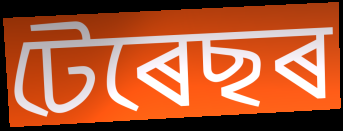
টেৰেছৰ